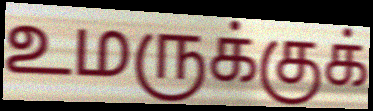
உமருக்குக்